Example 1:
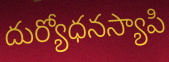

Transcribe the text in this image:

దుర్యోధనస్యాపి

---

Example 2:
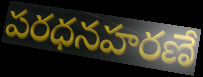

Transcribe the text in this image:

పరధనహరణే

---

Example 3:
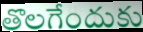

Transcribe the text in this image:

తొలగేందుకు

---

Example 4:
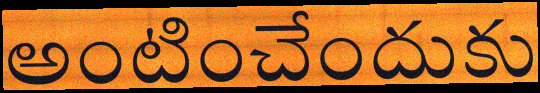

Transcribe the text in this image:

అంటించేందుకు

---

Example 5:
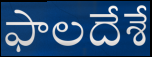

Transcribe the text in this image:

ఫాలదేశే